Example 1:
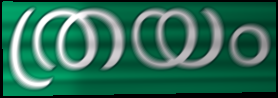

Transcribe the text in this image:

ത്രയം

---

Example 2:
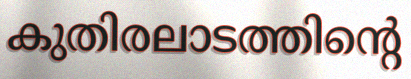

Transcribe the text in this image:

കുതിരലാടത്തിന്റെ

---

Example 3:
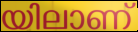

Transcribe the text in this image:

യിലാണ്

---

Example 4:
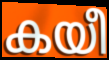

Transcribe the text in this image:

കയീ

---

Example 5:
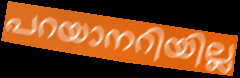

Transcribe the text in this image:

പറയാനറിയില്ല